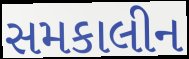
સમકાલીન